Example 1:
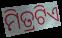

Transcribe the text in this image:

ମିତ୍ରଟିଏ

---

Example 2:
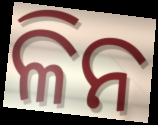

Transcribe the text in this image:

ଳିନ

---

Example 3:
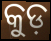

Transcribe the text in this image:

କୁଡ଼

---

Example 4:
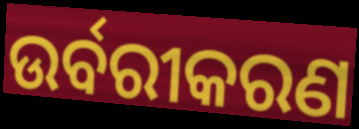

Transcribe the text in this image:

ଉର୍ବରୀକରଣ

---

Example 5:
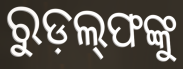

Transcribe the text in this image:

ରୁଡ଼ଲ୍‍ଫଙ୍କୁ